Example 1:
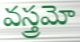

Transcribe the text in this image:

వస్త్రమో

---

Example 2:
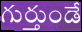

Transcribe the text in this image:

గుర్తుండే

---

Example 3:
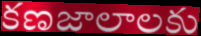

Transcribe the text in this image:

కణజాలాలకు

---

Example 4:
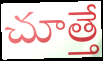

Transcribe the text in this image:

చూత్తే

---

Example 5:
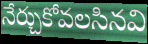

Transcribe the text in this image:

నేర్చుకోవలసినవి